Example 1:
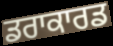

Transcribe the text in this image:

ਡਰਾਕਾਰਡ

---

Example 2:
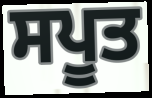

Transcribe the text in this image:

ਸਪੂਤ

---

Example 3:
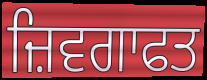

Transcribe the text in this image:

ਜ਼ਿਵਗਾਫਤ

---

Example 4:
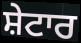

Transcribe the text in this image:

ਸ਼ੇਟਾਰ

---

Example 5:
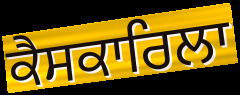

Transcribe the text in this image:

ਕੈਸਕਾਰਿਲਾ